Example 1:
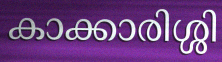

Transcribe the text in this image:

കാക്കാരിശ്ശി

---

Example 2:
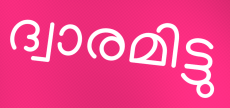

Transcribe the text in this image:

ദ്വാരമിട്ടു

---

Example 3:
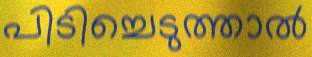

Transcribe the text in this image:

പിടിച്ചെടുത്താൽ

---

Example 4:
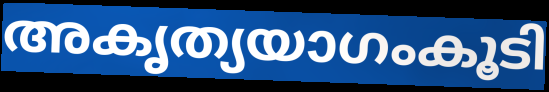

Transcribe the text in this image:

അകൃത്യയാഗംകൂടി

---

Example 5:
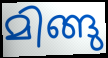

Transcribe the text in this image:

മിങ്ങു